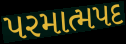
પરમાત્મપદ